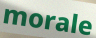
morale